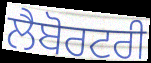
ਲੈਬੋਰਟਰੀ